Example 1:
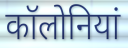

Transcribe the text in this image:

कॉलोनियां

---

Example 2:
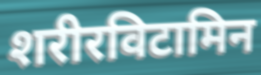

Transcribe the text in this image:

शरीरविटामिन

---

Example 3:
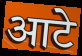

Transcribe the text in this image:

आटे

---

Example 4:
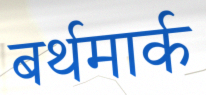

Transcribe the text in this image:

बर्थमार्क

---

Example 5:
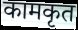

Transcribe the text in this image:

कामकृत